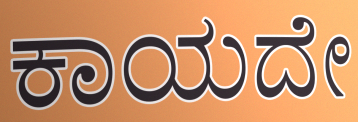
ಕಾಯದೇ